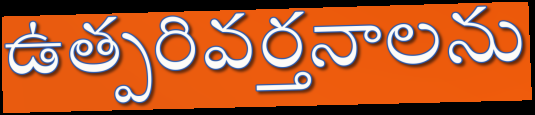
ఉత్పరివర్తనాలను